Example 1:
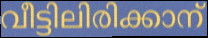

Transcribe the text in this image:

വീട്ടിലിരിക്കാന്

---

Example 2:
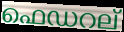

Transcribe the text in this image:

ഫെഡറല്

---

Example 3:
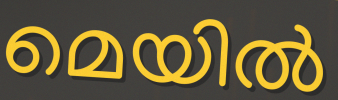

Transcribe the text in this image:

മെയിൽ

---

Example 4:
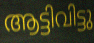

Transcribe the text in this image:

ആട്ടിവിട്ടു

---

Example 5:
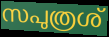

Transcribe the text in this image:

സപുത്രശ്